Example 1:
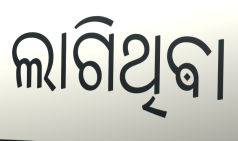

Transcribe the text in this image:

ଲାଗିଥିଵା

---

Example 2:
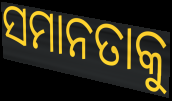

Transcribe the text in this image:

ସମାନତାକୁ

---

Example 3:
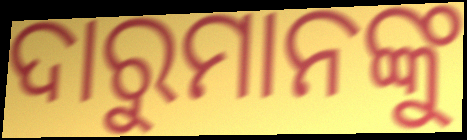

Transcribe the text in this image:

ଦାରୁମାନଙ୍କୁ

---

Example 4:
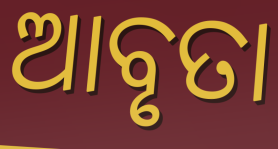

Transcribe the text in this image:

ଆବୃତା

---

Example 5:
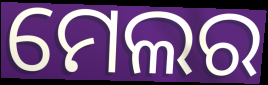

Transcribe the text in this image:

ମେଲର